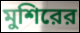
মুশিরের